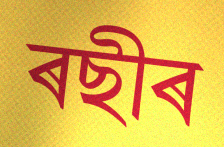
ৰছীৰ